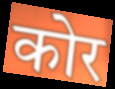
कोर